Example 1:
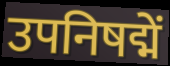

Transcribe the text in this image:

उपनिषद्में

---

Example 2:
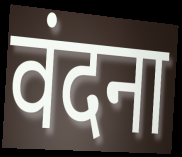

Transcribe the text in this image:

वंदना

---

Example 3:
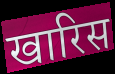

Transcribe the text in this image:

खारिस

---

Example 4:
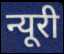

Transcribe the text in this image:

न्यूरी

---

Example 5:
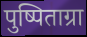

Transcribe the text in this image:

पुष्पिताग्रा